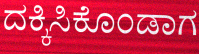
ದಕ್ಕಿಸಿಕೊಂಡಾಗ